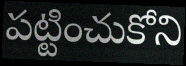
పట్టించుకోని